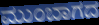
ಮುಂಬಾಗದ